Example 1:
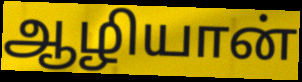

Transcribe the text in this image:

ஆழியான்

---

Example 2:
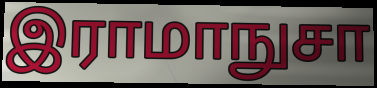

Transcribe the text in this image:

இராமாநுசா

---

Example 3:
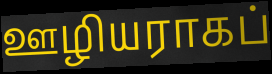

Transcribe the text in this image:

ஊழியராகப்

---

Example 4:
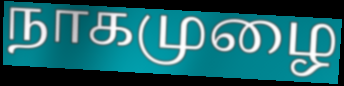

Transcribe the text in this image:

நாகமுழை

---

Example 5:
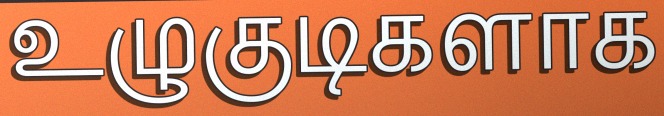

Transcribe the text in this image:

உழுகுடிகளாக